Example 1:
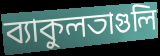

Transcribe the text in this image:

ব্যাকুলতাগুলি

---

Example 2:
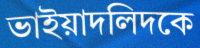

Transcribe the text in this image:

ভাইয়াদলিদকে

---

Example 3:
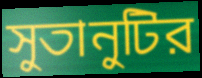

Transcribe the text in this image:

সুতানুটির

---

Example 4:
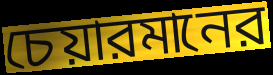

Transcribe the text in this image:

চেয়ারমানের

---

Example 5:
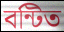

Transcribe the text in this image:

বন্টিত